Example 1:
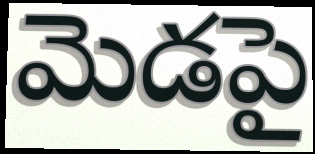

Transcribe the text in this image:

మెడపై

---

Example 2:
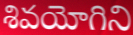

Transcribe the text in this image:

శివయోగిని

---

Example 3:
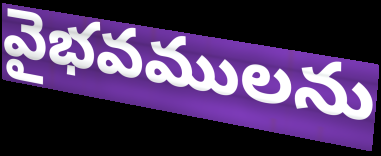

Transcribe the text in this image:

వైభవములను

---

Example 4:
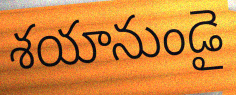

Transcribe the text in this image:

శయానుండై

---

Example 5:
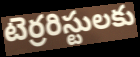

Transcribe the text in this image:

టెర్రరిస్టులకు